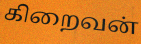
கிறைவன்